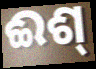
ଈଶ୍